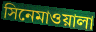
সিনেমাওয়ালা